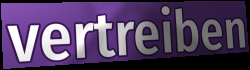
vertreiben